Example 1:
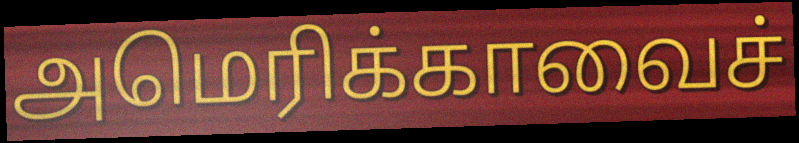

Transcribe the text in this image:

அமெரிக்காவைச்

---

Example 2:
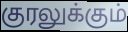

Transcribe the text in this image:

குரலுக்கும்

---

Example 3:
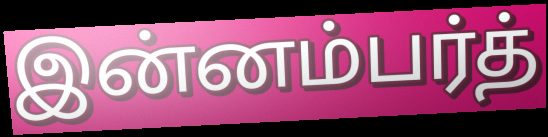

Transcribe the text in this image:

இன்னம்பர்த்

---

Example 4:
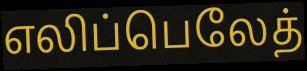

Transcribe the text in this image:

எலிப்பெலேத்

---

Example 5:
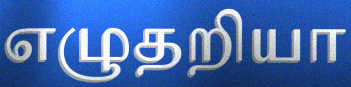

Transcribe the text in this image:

எழுதறியா